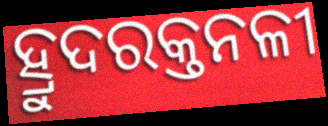
ହ୍ରୁଦରକ୍ତନଳୀ